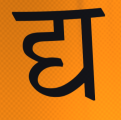
द्य